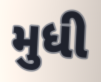
મુધી